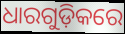
ଧାରଗୁଡ଼ିକରେ